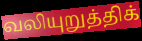
வலியுறுத்திக்